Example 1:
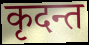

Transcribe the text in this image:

कृदन्त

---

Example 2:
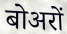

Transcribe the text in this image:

बोअरों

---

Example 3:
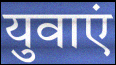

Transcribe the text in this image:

युवाएं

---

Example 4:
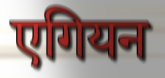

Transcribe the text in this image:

एगियन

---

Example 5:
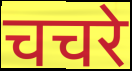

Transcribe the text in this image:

चचरे